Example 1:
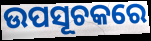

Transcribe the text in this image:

ଉପସୂଚକରେ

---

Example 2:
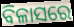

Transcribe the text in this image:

ବିଳାସରେ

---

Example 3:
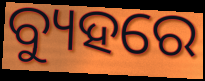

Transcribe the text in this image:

ବ୍ୟୁହରେ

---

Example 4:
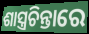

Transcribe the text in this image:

ଶାସ୍ତ୍ରଚିନ୍ତାରେ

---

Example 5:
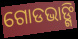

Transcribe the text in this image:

ଗୋଡଭାଙ୍ଗି